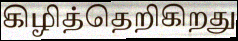
கிழித்தெறிகிறது